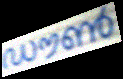
ഡൗൺ